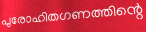
പുരോഹിതഗണത്തിന്റെ